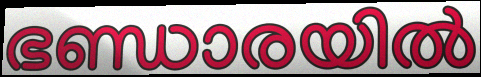
ഭണ്ഡാരയിൽ